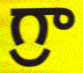
గ్రా